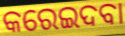
କରେଇଦବା